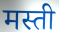
मस्ती